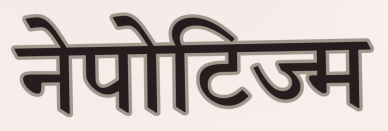
नेपोटिज्‍म